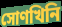
সোণখিনি